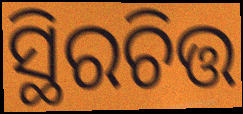
ସ୍ଥିରଚିତ୍ତ